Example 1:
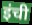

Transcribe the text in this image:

इंची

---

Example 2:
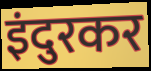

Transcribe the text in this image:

इंदुरकर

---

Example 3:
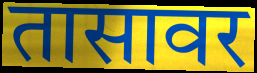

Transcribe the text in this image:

तासावर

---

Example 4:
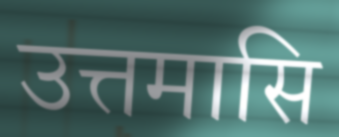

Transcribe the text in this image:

उत्तमासि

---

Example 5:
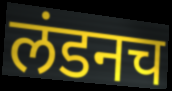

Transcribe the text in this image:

लंडनच